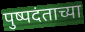
पुष्पदंताच्या